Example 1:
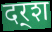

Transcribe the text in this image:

दर्श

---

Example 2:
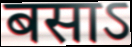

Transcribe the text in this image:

बसाऽ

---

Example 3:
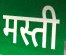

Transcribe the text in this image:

मस्ती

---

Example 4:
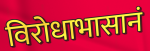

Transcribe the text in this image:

विरोधाभासानं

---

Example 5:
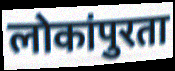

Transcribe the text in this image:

लोकांपुरता